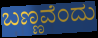
ಬಣ್ಣವೆಂದು